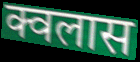
क्वलास